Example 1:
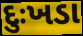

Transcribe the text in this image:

દુઃખડા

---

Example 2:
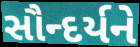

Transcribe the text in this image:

સૌન્દર્યને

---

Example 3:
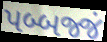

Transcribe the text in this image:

પબ્બજ્જં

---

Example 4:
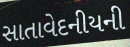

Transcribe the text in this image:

સાતાવેદનીયની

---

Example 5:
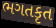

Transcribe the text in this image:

ભગતકૃત